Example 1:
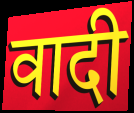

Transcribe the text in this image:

वादी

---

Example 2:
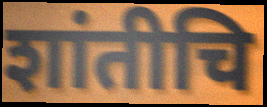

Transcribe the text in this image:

शांतीचि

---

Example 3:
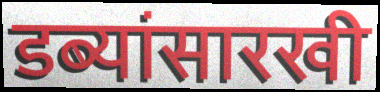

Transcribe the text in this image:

डब्यांसारखी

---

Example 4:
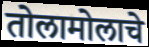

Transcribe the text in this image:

तोलामोलाचे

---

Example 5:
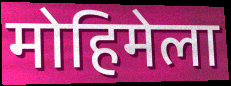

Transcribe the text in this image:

मोहिमेला